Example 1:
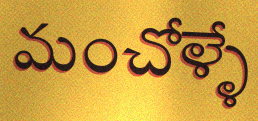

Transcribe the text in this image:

మంచోళ్ళే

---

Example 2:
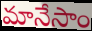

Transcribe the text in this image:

మానేసాం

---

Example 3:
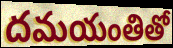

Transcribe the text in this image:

దమయంతితో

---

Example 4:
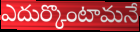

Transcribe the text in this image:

ఎదుర్కొంటామనే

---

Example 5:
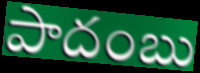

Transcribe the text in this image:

పాదంబు